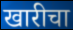
खारीचा